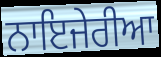
ਨਾਇਜੇਰੀਆ